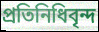
প্রতিনিধিবৃন্দ